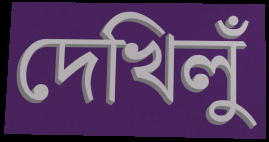
দেখিলুঁ